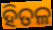
ହିତଳ